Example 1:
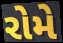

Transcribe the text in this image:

રોમે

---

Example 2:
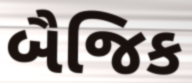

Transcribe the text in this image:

બૈજિક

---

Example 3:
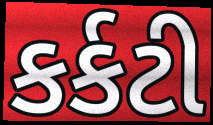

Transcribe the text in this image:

કર્કટી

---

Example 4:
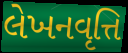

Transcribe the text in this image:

લેખનવૃત્તિ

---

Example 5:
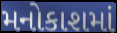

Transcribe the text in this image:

મનોકાશમાં